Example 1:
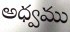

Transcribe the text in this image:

అధ్వము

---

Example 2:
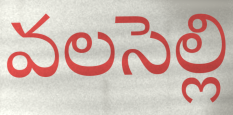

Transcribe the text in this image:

వలసెల్లి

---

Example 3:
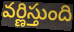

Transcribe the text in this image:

వర్ణిస్తుంది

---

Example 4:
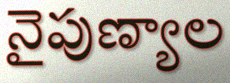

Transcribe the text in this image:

నైపుణ్యాల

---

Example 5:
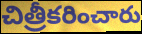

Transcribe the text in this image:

చిత్రీకరించారు